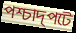
পশ্চাদ্‌পটে